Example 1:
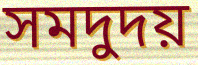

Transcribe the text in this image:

সমদুদয়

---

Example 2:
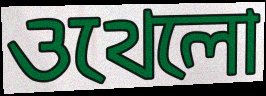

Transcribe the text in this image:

ওথেলো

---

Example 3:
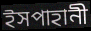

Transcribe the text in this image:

ইসপাহানী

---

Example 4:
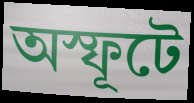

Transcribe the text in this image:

অস্ফূটে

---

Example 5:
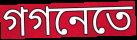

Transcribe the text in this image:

গগনেতে